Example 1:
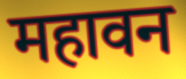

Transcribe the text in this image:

महावन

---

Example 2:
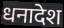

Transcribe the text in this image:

धनादेश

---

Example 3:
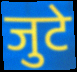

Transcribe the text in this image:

जुटे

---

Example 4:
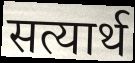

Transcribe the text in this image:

सत्यार्थ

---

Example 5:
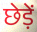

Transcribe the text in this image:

छेड़ें